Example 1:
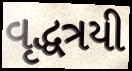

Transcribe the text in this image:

વૃદ્ધત્રયી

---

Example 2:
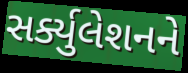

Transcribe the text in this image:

સર્ક્યુલેશનને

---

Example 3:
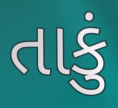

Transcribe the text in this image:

તાકું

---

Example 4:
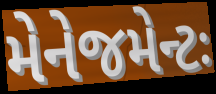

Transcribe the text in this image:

મેનેજમેન્ટઃ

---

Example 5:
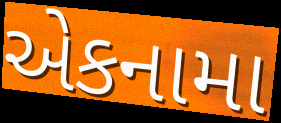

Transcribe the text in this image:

એકનામા